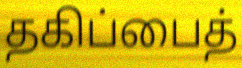
தகிப்பைத்